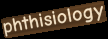
phthisiology